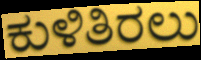
ಕುಳಿತಿರಲು